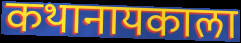
कथानायकाला